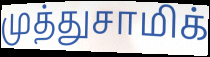
முத்துசாமிக்